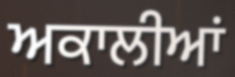
ਅਕਾਲੀਆਂ